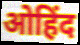
ओहिंद